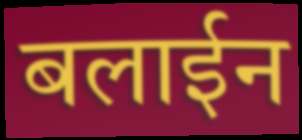
बलाईन